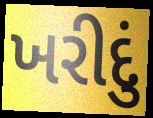
ખરીદું